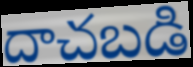
దాచబడి